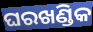
ଘରଖଣ୍ଡିକ